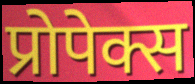
प्रोपेक्स